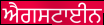
ਐਗਸਟਾਈਨ